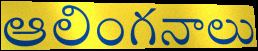
ఆలింగనాలు